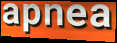
apnea